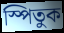
স্পিতুক